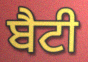
ਬੈਟੀ